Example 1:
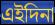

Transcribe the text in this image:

এইদিনা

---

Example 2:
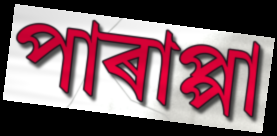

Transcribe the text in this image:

পাৰাপ্পা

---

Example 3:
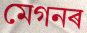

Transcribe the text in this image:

মেগনৰ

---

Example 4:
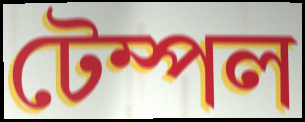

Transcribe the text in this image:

টেম্পল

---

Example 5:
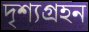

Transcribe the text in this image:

দৃশ্যগ্ৰহন